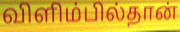
விளிம்பில்தான்